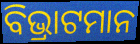
ବିଭ୍ରାଟମାନ